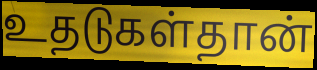
உதடுகள்தான்